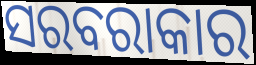
ସରବରାକାର